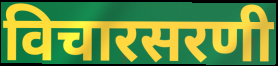
विचारसरणी